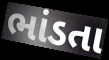
ભાંડતા